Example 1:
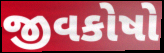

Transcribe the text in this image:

જીવકોષો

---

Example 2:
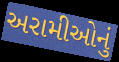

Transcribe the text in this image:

અરામીઓનું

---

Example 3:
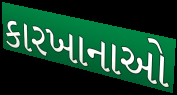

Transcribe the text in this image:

કારખાનાઓ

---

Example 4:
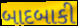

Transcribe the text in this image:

બાદબાકી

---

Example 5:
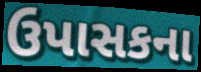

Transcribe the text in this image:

ઉપાસકના